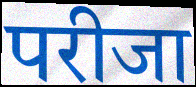
परीजा